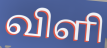
விளி